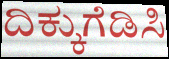
ದಿಕ್ಕುಗೆಡಿಸಿ